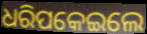
ଧରିପକେଇଲେ